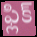
ఫ్లిక్